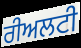
ਰੀਅਲਟੀ